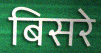
बिसरे